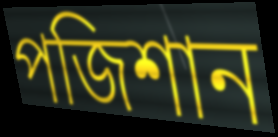
পজিশান